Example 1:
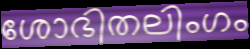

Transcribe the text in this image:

ശോഭിതലിംഗം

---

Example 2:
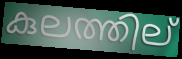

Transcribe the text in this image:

കുലത്തില്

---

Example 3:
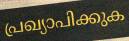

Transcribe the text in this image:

പ്രഖ്യാപിക്കുക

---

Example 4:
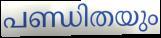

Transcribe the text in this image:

പണ്ഡിതയും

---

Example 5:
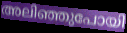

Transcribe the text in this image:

അലിഞ്ഞുപോയി